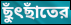
ছুঁৎছাঁতের